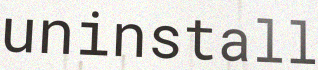
uninstall